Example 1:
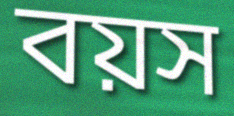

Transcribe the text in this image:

বয়স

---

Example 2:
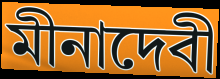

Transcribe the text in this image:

মীনাদেবী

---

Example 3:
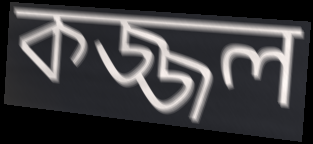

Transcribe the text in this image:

কজ্জল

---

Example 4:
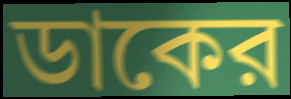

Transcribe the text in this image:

ডাকের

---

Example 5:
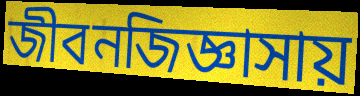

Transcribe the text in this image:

জীবনজিজ্ঞাসায়